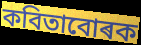
কবিতাবোৰক